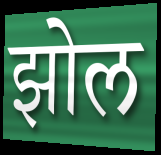
झोल